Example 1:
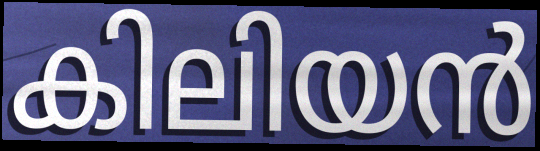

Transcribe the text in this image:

കിലിയൻ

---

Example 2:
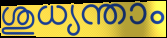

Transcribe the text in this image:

ശുധ്യന്താം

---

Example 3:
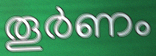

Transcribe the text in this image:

തൂർണം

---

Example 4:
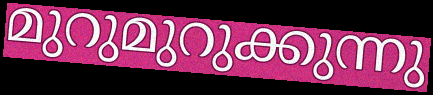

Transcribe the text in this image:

മുറുമുറുക്കുന്നു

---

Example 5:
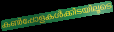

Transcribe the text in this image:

കൺപ്പോളകൾക്കിടയിലൂടെ